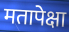
मतापेक्षा